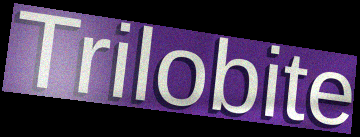
Trilobite